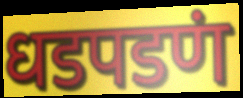
धडपडणं